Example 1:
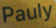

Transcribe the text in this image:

Pauly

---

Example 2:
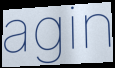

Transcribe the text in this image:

agin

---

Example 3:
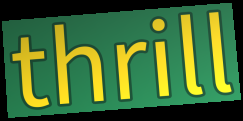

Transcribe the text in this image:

thrill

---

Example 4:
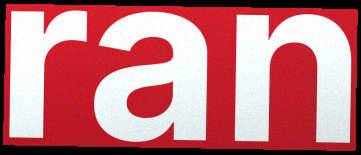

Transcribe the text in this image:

ran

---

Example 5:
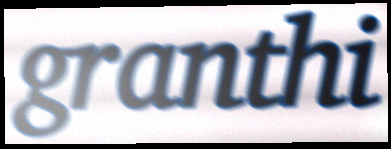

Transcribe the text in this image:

granthi